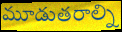
మూడుతరాల్ని